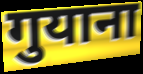
गुयाना